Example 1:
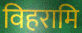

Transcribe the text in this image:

विहरामि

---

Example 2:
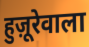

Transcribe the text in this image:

हुज़ूरेवाला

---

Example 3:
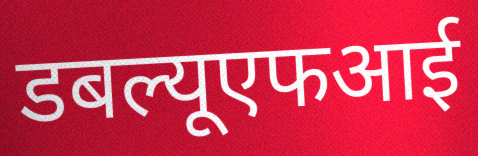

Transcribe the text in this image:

डबल्यूएफआई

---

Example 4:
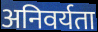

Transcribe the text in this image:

अनिवर्यता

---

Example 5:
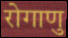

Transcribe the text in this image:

रोगाणु